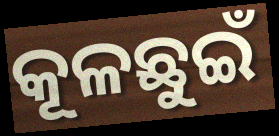
କୂଳଛୁଇଁ